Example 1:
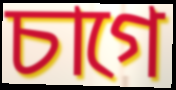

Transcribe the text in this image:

চাগে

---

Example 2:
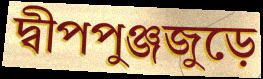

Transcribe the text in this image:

দ্বীপপুঞ্জজুড়ে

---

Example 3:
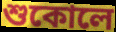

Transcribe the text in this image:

শুকোলে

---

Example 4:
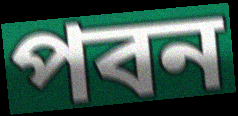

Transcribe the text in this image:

পবন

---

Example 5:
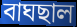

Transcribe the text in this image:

বাঘছাল